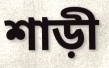
শাড়ী